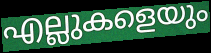
എല്ലുകളെയും